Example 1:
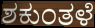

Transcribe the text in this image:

ಶಕುಂತಳೆ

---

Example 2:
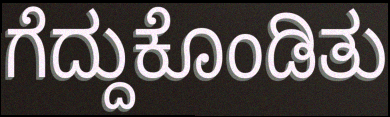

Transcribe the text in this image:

ಗೆದ್ದುಕೊಂಡಿತು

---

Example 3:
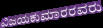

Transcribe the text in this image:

ವಿಜಯಕುಮಾರರವರು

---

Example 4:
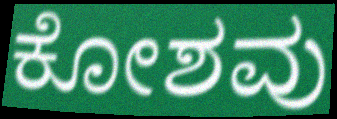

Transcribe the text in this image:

ಕೋಶವು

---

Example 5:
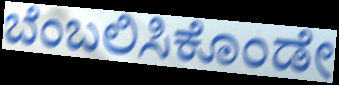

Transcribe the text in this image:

ಬೆಂಬಲಿಸಿಕೊಂಡೇ